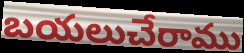
బయలుచేరాము